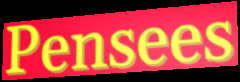
Pensees